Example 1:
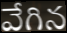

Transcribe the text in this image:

వేగిన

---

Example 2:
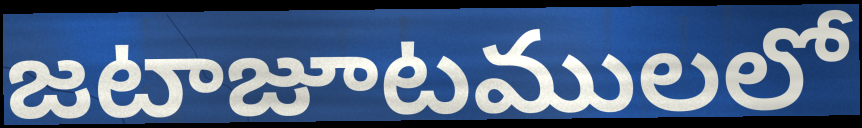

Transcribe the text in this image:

జటాజూటములలో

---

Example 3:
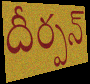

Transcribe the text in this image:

దీర్పన్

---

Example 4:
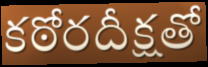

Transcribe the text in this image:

కఠోరదీక్షతో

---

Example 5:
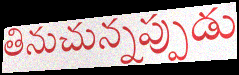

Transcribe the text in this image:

తినుచున్నప్పుడు